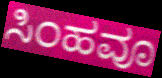
ಸಿಂಹವೂ